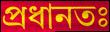
প্ৰধানতঃ